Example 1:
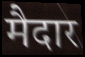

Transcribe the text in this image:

मैदार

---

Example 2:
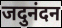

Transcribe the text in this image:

जदुनंदन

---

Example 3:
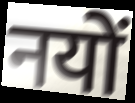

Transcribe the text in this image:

नयों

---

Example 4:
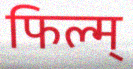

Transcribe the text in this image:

फिल्म्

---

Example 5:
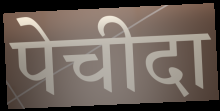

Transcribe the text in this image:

पेचीदा